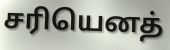
சரியெனத்